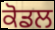
ਕੋਡਲ